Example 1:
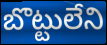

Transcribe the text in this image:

బొట్టులేని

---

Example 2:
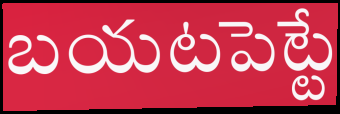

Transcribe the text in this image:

బయటపెట్టే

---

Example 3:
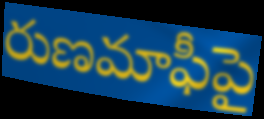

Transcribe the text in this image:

రుణమాఫీపై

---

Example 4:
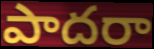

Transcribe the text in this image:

పాదరా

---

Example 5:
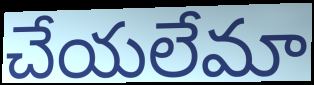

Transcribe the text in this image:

చేయలేమా